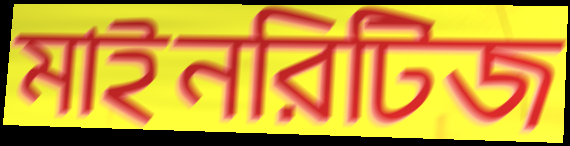
মাইনরিটিজ